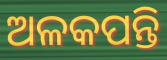
ଅଳକପନ୍ତି